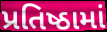
પ્રતિષ્ઠામાં